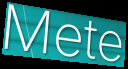
Mete